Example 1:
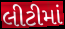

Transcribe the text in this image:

લીટીમાં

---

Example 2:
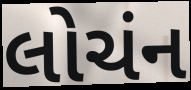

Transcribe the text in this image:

લોચંન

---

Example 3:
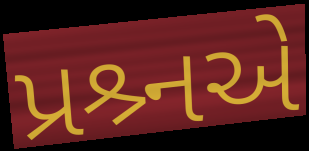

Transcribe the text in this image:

પ્રશ્ર્નએ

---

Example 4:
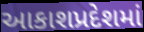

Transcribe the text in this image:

આકાશપ્રદેશમાં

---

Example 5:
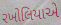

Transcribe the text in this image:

રખોલિયાએ